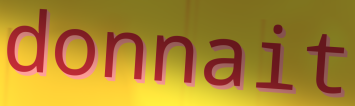
donnait